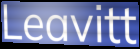
Leavitt